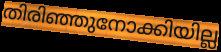
തിരിഞ്ഞുനോക്കിയില്ല